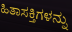
ಹಿತಾಸಕ್ತಿಗಳನ್ನು